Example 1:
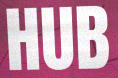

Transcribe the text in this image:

HUB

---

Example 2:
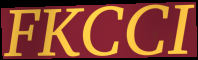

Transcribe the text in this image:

FKCCI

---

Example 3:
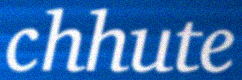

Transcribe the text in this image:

chhute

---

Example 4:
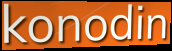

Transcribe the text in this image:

konodin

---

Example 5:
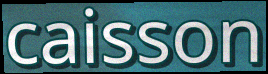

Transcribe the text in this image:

caisson